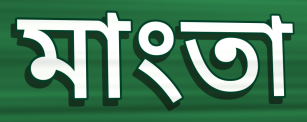
মাংতা